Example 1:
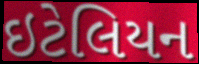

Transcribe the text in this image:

ઇટેલિયન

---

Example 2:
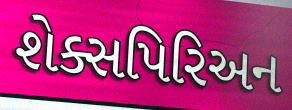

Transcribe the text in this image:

શેક્સપિરિઅન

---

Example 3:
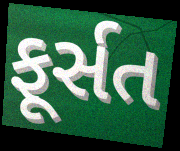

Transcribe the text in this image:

ફૂર્સત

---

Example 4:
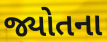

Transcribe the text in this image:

જ્યોતના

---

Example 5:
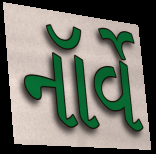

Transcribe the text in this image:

નૉર્વે